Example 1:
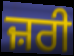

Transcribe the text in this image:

ਜ਼ਰੀ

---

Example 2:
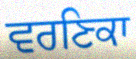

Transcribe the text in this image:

ਵਰਣਿਕਾ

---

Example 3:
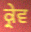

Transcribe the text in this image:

ਕ੍ਰੇਵ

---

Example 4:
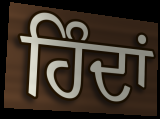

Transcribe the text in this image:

ਹਿੰਦਾਂ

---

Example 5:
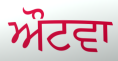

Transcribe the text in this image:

ਔਟਵਾ